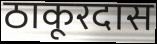
ठाकूरदास